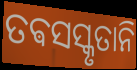
ତଵସସ୍କୃତାନି